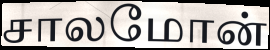
சாலமோன்